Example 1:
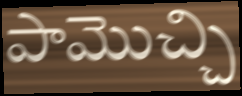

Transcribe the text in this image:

పామొచ్చి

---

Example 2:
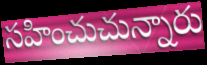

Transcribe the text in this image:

సహించుచున్నారు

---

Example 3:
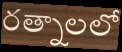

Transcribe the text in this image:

రత్నాలలో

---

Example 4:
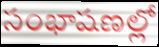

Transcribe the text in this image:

సంభాషణల్లో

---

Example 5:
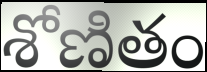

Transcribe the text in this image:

శోణితం